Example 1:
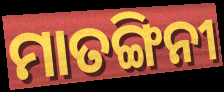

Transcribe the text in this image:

ମାତଙ୍ଗିନୀ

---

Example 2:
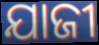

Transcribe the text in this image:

ଯାଜୀ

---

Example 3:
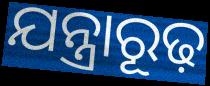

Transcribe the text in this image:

ଯନ୍ତ୍ରାରୂଢ଼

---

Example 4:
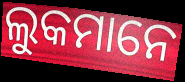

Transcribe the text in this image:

ଲୁକମାନେ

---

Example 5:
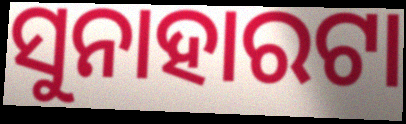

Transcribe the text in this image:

ସୁନାହାରଟା